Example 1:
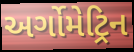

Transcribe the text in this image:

અર્ગોમેટ્રિન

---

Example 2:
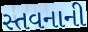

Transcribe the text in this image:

સ્તવનાની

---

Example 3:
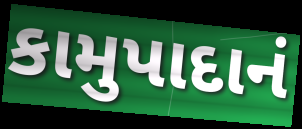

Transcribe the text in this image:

કામુપાદાનં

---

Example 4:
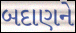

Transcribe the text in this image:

બદાણને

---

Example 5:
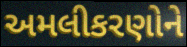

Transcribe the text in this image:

અમલીકરણોને